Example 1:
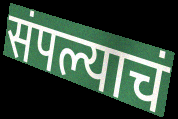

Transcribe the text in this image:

संपल्याचं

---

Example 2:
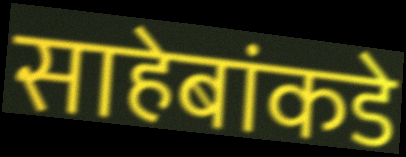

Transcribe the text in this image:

साहेबांकडे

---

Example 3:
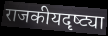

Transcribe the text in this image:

राजकीयदृष्ट्या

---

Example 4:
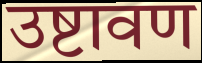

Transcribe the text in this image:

उष्टावण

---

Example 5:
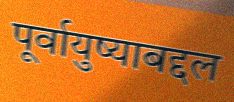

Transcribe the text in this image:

पूर्वायुष्याबद्दल